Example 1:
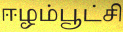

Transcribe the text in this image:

ஈழம்பூட்சி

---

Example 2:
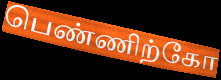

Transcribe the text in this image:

பெண்ணிற்கோ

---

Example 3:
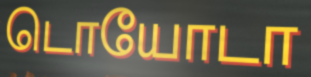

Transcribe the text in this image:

டொயோடா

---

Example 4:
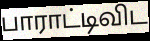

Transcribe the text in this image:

பாராட்டிவிட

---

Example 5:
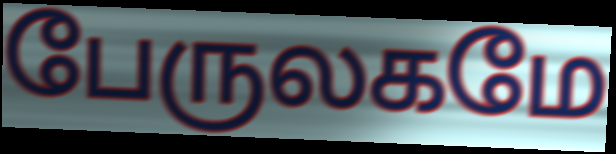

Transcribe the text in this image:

பேருலகமே